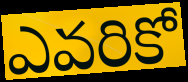
ఎవరికో